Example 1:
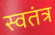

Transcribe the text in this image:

स्वतंत्र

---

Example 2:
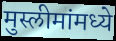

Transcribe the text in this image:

मुस्लीमांमध्ये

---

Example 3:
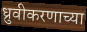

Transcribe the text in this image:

ध्रुवीकरणाच्या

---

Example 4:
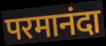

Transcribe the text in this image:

परमानंदा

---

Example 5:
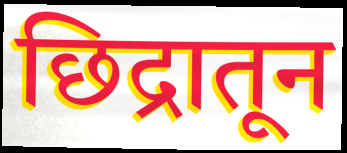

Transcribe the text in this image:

छिद्रातून